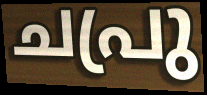
ചപ്രു